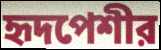
হৃদপেশীর